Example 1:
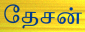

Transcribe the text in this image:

தேசன்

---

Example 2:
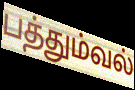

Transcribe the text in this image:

பத்தும்வல்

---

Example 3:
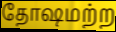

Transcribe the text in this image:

தோஷமற்ற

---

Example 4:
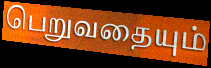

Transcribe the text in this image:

பெறுவதையும்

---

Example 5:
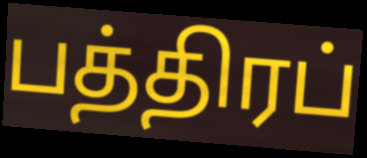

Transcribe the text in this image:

பத்திரப்